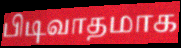
பிடிவாதமாக